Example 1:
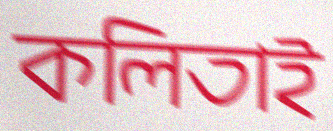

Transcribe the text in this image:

কলিতাই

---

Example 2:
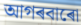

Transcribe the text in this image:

আগৰবাৰো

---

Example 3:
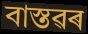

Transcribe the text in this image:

বাস্তৱৰ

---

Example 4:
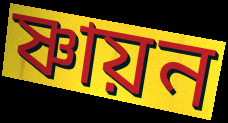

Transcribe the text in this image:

ষ্ণায়ন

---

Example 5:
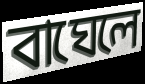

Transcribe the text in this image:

বাঘেলে